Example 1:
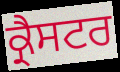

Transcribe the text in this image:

ਕ੍ਰੈਸਟਰ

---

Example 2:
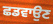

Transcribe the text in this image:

ਛਡਵਾਉਣ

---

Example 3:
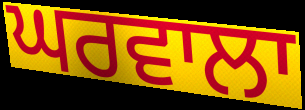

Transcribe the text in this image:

ਘਰਵਾਲਾ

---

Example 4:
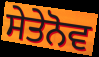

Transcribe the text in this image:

ਸੇਤੇਨੋਵ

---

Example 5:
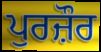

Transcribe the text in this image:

ਪੁਰਜ਼ੌਰ